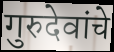
गुरुदेवांचे